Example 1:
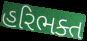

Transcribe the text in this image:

હરિભક્ત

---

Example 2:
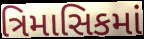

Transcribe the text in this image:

ત્રિમાસિકમાં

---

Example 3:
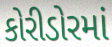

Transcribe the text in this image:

કોરીડોરમાં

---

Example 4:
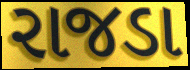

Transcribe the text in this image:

રાજડા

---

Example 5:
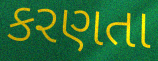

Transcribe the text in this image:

કરણતા